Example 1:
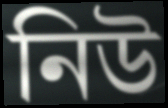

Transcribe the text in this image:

নিউ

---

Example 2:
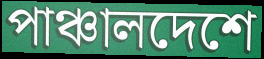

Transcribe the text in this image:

পাঞ্চালদেশে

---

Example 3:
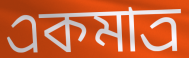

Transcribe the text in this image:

একমাত্র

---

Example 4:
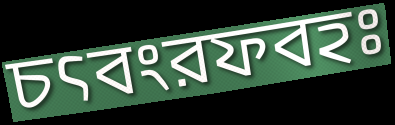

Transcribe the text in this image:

চৎবংরফবহঃ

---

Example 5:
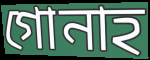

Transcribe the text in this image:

গোনাহ